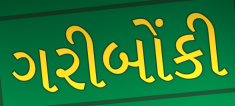
ગરીબોંકી